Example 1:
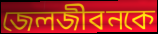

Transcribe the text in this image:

জেলজীবনকে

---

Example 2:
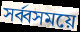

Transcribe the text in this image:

সর্ব্বসময়ে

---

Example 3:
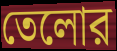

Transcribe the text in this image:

তেলোর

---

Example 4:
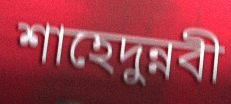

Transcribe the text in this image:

শাহেদুন্নবী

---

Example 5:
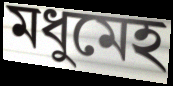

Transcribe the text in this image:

মধুমেহ